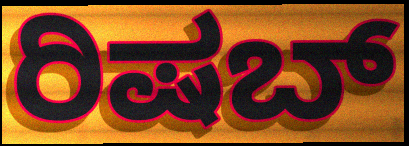
ರಿಷಬ್